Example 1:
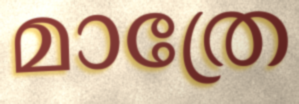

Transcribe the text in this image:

മാത്രേ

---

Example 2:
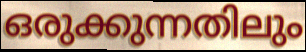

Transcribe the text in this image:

ഒരുക്കുന്നതിലും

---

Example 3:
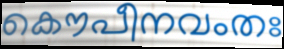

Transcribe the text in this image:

കൌപീനവംതഃ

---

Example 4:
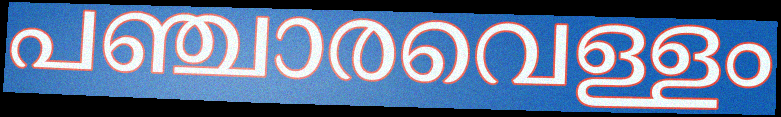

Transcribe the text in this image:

പഞ്ചാരവെള്ളം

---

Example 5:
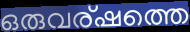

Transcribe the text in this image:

ഒരുവര്ഷത്തെ